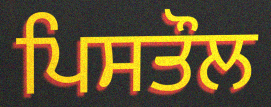
ਪਿਸਤੌਲ